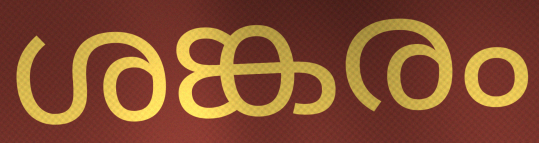
ശങ്കരം